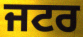
ਜਟਰ